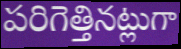
పరిగెత్తినట్లుగా